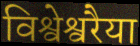
विश्वेश्वरैया